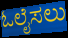
ಓಲೈಸಲು